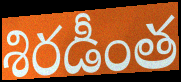
శిరడీంత